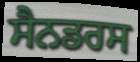
ਸੈਨਡਰਸ